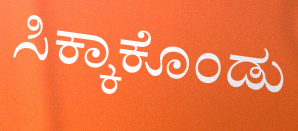
ಸಿಕ್ಕಾಕೊಂಡು